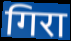
गिरा